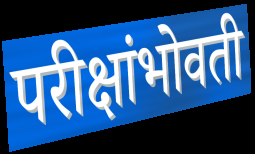
परीक्षांभोवती